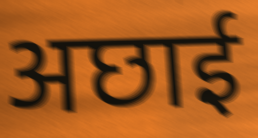
अछाई